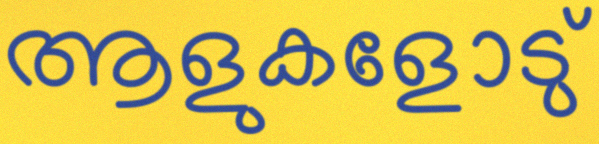
ആളുകളോടു്